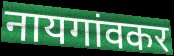
नायगांवकर